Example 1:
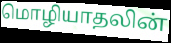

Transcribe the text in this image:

மொழியாதலின்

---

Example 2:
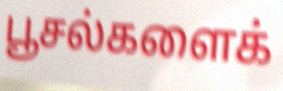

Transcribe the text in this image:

பூசல்களைக்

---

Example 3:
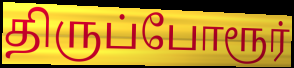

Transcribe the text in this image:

திருப்போரூர்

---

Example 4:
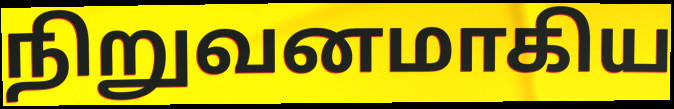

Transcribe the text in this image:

நிறுவனமாகிய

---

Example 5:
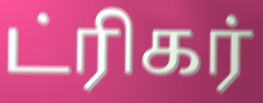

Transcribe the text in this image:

ட்ரிகர்